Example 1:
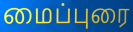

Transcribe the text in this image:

மைப்புரை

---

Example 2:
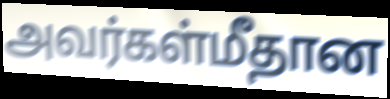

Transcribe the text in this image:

அவர்கள்மீதான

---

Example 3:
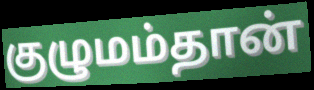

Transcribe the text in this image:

குழுமம்தான்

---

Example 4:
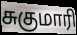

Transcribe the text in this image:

சுகுமாரி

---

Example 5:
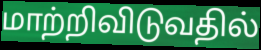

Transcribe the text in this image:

மாற்றிவிடுவதில்